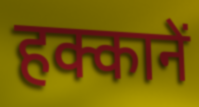
हक्कानें